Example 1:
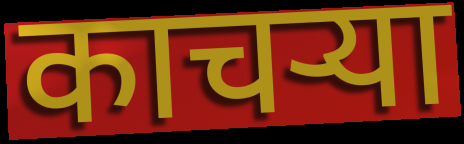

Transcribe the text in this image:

काचऱ्या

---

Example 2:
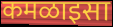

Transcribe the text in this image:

कमळाइसा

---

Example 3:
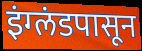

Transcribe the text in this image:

इंग्लंडपासून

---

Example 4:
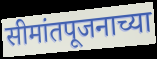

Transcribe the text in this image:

सीमांतपूजनाच्या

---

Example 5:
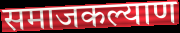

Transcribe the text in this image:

समाजकल्याण